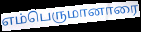
எம்பெருமானாரை